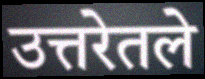
उत्तरेतले